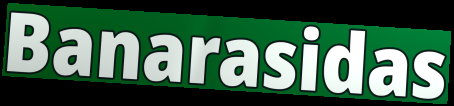
Banarasidas